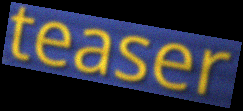
teaser